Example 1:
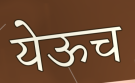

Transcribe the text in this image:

येऊच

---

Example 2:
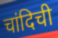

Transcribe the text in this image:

चांदिची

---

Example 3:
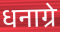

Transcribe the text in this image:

धनाग्रे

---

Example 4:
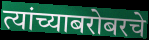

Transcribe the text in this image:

त्यांच्याबरोबरचे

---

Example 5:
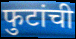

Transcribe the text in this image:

फुटांची